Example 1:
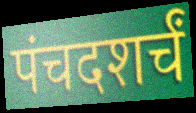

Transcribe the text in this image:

पंचदशर्चं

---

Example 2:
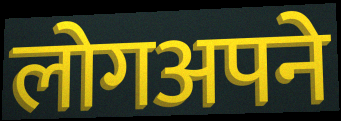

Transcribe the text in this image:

लोगअपने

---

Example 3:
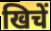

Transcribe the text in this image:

खिचें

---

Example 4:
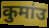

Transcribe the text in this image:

कुमांउ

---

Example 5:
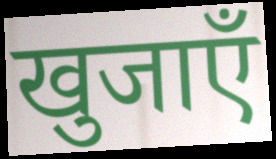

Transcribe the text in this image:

खुजाएँ